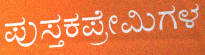
ಪುಸ್ತಕಪ್ರೇಮಿಗಳ